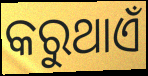
କରୁଥାଏଁ